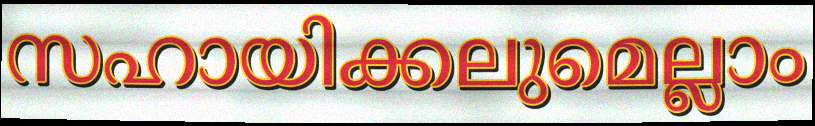
സഹായിക്കലുമെല്ലാം